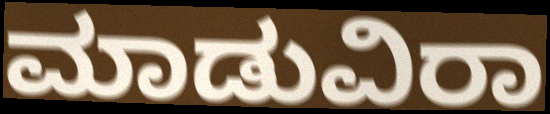
ಮಾಡುವಿರಾ